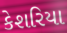
કેશરિયા